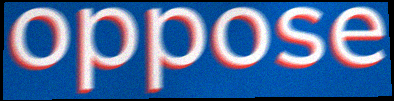
oppose